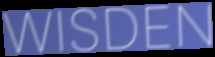
WISDEN